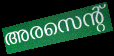
അരസെന്റ്